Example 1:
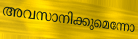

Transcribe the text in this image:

അവസാനിക്കുമെന്നോ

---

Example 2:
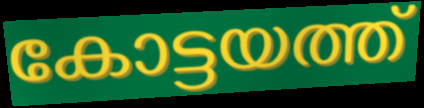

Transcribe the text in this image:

കോട്ടയത്ത്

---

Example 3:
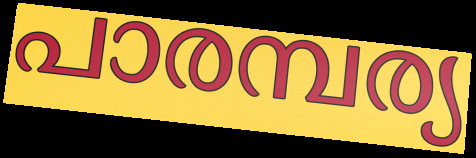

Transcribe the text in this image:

പാരമ്പര്യ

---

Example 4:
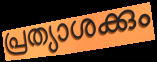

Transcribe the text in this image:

പ്രത്യാശക്കും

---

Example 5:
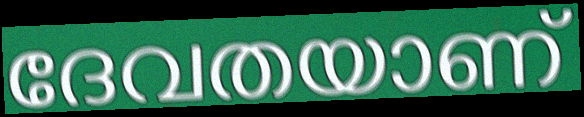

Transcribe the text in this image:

ദേവതയാണ്